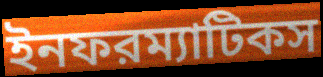
ইনফরম্যাটিকস